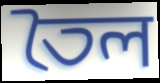
তৈল